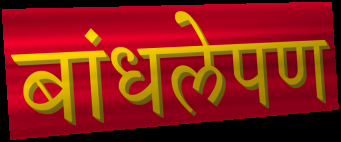
बांधलेपण